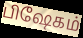
பிஷேகம்